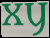
xy